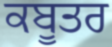
ਕਬੂਤਰ